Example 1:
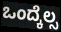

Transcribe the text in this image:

ಒಂದ್ಕೆಲ್ಸ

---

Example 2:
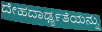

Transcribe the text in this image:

ದೇಹದಾರ್ಢ್ಯತೆಯನ್ನು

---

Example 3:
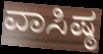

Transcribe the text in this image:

ವಾಸಿಷ್ಠ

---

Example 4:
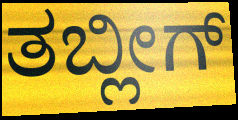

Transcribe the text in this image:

ತಬ್ಲೀಗ್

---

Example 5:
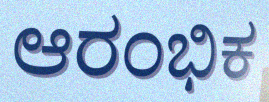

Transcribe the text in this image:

ಆರಂಭಿಕ